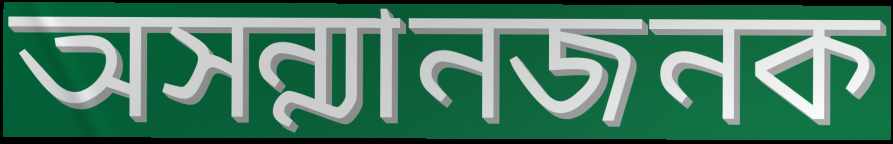
অসন্মানজনক